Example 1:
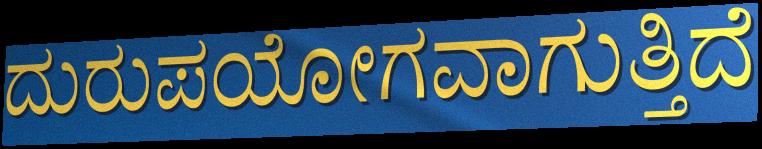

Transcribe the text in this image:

ದುರುಪಯೋಗವಾಗುತ್ತಿದೆ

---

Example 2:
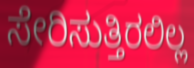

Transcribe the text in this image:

ಸೇರಿಸುತ್ತಿರಲಿಲ್ಲ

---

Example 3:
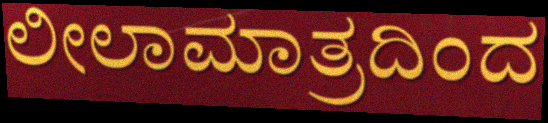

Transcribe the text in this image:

ಲೀಲಾಮಾತ್ರದಿಂದ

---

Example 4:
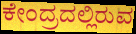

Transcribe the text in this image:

ಕೇಂದ್ರದಲ್ಲಿರುವ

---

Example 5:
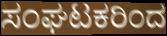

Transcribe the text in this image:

ಸಂಘಟಕರಿಂದ